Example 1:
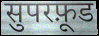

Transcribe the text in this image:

सुपरफ़ूड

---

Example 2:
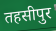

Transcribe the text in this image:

तहसीपुर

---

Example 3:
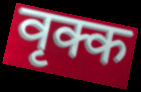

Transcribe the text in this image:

वृक्क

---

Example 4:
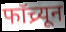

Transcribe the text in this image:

फॉच्र्यून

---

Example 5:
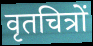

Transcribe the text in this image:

वृतचित्रों